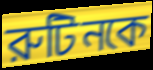
রুটিনকে